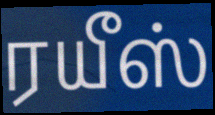
ரயீஸ்